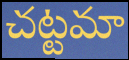
చట్టమా